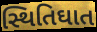
સ્થિતિઘાત